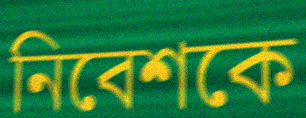
নিবেশকে